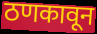
ठणकावून